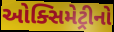
ઓક્સિમેટ્રીનો